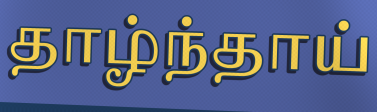
தாழ்ந்தாய்